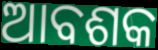
ଆବଶକ